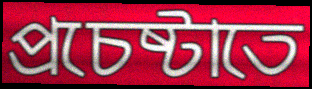
প্রচেষ্টাতে